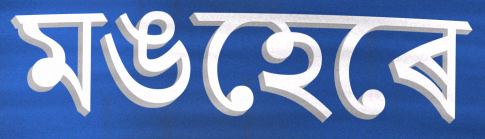
মঙহেৰে